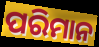
ପରିମାନ